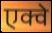
एक्वे